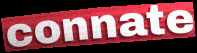
connate